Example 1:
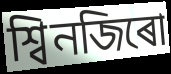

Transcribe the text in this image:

শ্বিনজিৰো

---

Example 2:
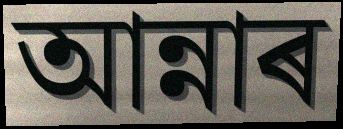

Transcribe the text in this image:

আন্নাৰ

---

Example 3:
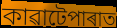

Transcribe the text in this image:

কাৱাটেপাৰাত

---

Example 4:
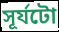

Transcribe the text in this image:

সূৰ্যটো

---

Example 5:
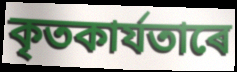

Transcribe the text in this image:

কৃতকাৰ্যতাৰে